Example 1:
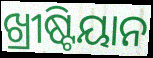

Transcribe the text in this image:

ଖ୍ରୀଷ୍ଟିୟାନ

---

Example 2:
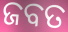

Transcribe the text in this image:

ଜବତ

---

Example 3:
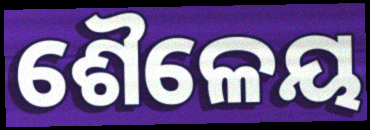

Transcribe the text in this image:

ଶୈଳେୟ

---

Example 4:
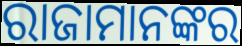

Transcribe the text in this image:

ରାଜାମାନଙ୍କର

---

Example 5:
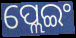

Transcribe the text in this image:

ପ୍ଲେଇଂ